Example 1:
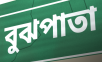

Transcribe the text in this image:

বুঝপাতা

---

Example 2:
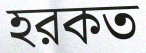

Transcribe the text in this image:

হরকত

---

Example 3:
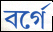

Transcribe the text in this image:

বর্গে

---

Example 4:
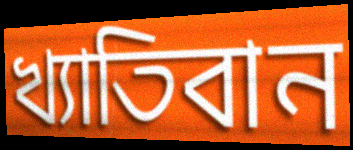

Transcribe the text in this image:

খ্যাতিবান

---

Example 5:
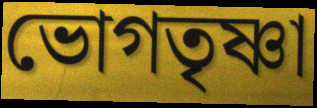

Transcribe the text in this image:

ভোগতৃষ্ণা